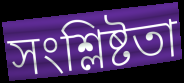
সংশ্লিষ্টতা